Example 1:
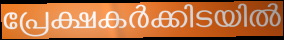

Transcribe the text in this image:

പ്രേക്ഷകർക്കിടയിൽ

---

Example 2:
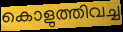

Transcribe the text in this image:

കൊളുത്തിവച്ച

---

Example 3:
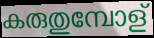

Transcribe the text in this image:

കരുതുമ്പോള്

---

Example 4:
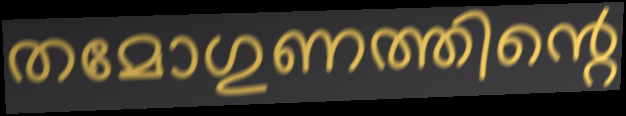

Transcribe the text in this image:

തമോഗുണത്തിന്റെ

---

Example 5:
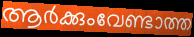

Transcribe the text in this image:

ആർക്കുംവേണ്ടാത്ത